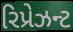
રિપ્રેઝન્ટ